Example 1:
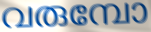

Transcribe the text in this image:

വരുമ്പോ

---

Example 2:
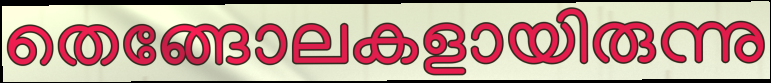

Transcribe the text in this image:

തെങ്ങോലകളായിരുന്നു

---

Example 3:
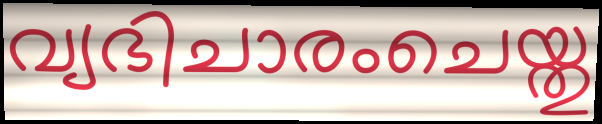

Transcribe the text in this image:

വ്യഭിചാരംചെയ്തു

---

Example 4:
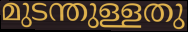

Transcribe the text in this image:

മുടന്തുള്ളതു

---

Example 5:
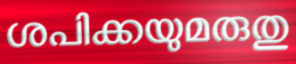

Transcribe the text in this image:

ശപിക്കയുമരുതു